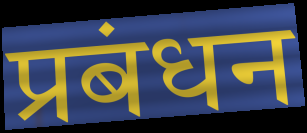
प्रबंधन